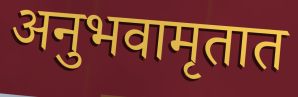
अनुभवामृतात